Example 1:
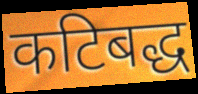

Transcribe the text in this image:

कटिबद्ध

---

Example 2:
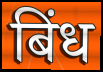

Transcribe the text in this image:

बिंध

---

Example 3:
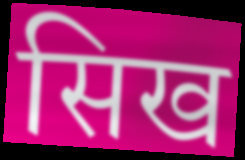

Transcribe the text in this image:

सिख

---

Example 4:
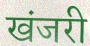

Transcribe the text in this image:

खंजरी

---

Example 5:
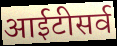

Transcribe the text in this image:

आईटीसर्व